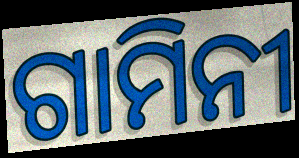
ଗାମିନୀ